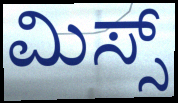
ಮಿಸ್ಸ್